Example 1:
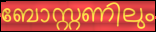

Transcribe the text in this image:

ബോസ്റ്റണിലും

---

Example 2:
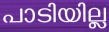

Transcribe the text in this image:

പാടിയില്ല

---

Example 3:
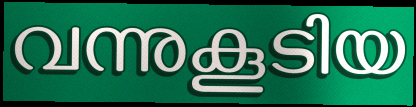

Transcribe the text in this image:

വന്നുകൂടിയ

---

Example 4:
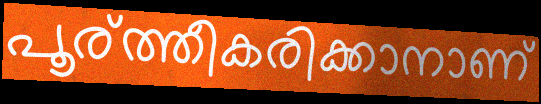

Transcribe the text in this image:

പൂര്ത്തീകരിക്കാനാണ്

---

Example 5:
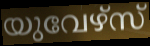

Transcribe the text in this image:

യുവേഴ്സ്